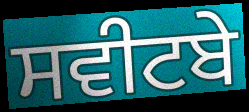
ਸਵੀਟਬੇ